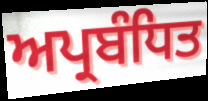
ਅਪ੍ਰਬੰਧਿਤ